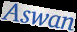
Aswan